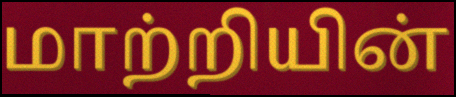
மாற்றியின்